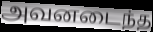
அவனடைந்த